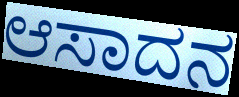
ಆಸಾದನ